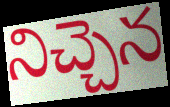
నిచ్చెన